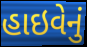
હાઇવેનું